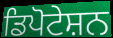
ਡਿਪੋਟੇਸ਼ਨ